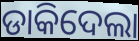
ଡାକିଦେଲା